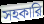
সহকারি